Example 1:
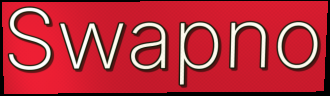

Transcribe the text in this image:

Swapno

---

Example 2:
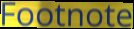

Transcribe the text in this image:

Footnote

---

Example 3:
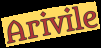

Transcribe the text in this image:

Arivile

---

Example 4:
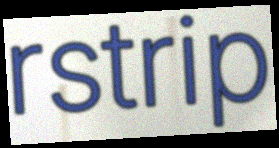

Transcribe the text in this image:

rstrip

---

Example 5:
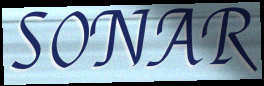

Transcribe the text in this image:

SONAR